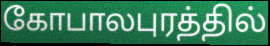
கோபாலபுரத்தில்